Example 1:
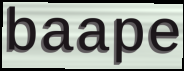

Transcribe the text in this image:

baape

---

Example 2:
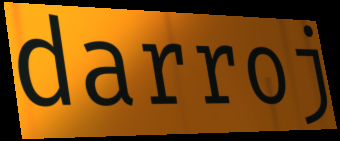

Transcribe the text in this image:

darroj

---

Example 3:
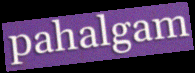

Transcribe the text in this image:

pahalgam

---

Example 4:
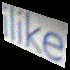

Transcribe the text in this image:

ilike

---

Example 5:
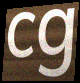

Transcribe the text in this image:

cg